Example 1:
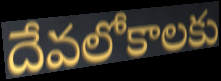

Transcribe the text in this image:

దేవలోకాలకు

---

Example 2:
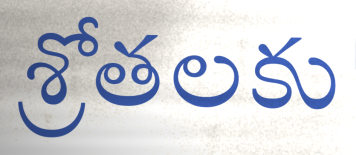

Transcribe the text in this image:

శ్రోతలకు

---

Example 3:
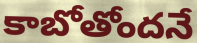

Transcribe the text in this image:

కాబోతోందనే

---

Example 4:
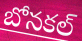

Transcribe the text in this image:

బోనకల్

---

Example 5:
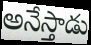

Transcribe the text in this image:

అనేస్తాడు